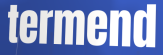
termend